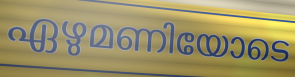
ഏഴുമണിയോടെ